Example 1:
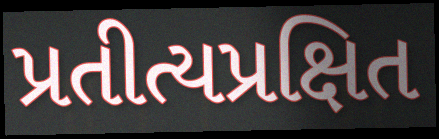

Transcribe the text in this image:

પ્રતીત્યપ્રક્ષિત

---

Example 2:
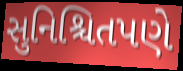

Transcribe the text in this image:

સુનિશ્ચિતપણે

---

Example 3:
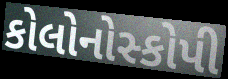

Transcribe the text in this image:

કોલોનોસ્કોપી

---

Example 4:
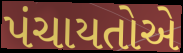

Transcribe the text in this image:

પંચાયતોએ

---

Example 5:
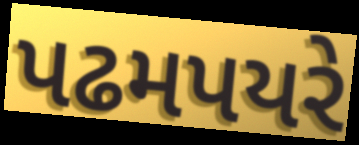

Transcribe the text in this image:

પઢમપયરે